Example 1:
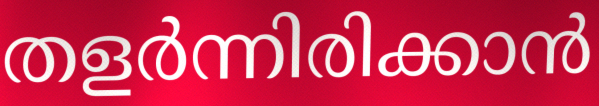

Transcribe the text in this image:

തളർന്നിരിക്കാൻ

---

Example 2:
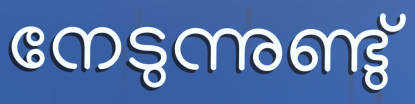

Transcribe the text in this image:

നേടുന്നുണ്ടു്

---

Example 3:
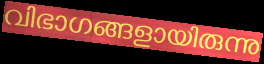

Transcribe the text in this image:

വിഭാഗങ്ങളായിരുന്നു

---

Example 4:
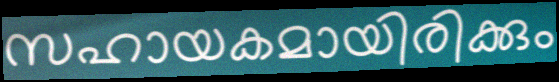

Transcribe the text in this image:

സഹായകമായിരിക്കും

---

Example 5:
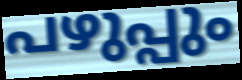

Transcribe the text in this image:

പഴുപ്പും